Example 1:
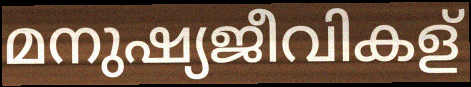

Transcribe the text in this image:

മനുഷ്യജീവികള്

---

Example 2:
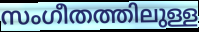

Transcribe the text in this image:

സംഗീതത്തിലുള്ള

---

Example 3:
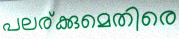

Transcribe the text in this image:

പലര്ക്കുമെതിരെ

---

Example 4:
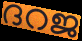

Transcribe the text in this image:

ദറജ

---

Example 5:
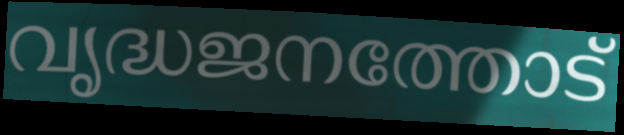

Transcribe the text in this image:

വൃദ്ധജനത്തോട്